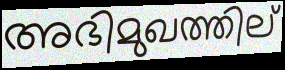
അഭിമുഖത്തില്